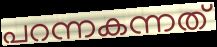
പറന്നകന്നത്